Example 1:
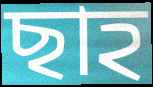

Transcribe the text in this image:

ছাহ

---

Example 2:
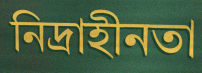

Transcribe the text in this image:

নিদ্ৰাহীনতা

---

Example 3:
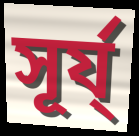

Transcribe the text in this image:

সূৰ্য্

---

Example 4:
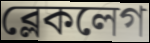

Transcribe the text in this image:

ব্লেকলেগ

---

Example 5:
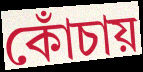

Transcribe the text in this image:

কোঁচায়